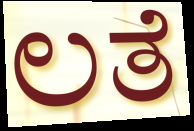
ಲತೆ